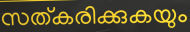
സത്കരിക്കുകയും